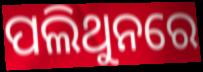
ପଲିଥୁନରେ